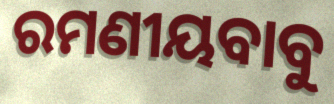
ରମଣୀୟବାବୁ